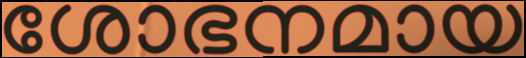
ശോഭനമായ